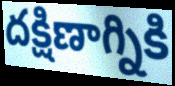
దక్షిణాగ్నికి